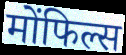
मोंफिल्स